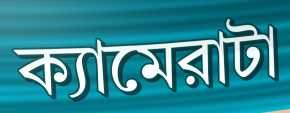
ক্যামেরাটা